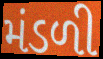
મંડળી